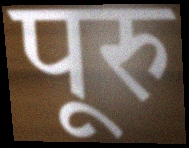
पूरु